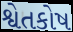
શ્વેતકોષ